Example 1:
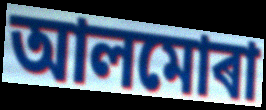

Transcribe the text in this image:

আলমোৰা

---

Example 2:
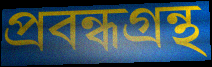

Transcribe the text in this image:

প্ৰবন্ধগ্ৰন্থ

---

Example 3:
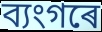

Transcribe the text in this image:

ব্যংগৰে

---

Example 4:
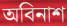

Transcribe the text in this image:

অবিনাশ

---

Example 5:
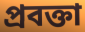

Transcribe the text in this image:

প্ৰবক্তা